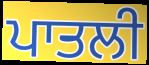
ਪਾਤਲੀ